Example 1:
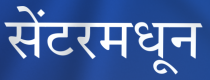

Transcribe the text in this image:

सेंटरमधून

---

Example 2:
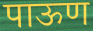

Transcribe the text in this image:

पाऊण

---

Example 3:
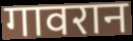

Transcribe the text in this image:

गावरान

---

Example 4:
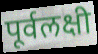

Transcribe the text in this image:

पूर्वलक्षी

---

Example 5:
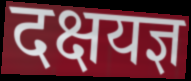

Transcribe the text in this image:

दक्षयज्ञ